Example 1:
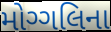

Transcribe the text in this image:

મોગ્ગલિના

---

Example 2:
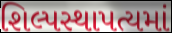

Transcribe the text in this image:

શિલ્પસ્થાપત્યમાં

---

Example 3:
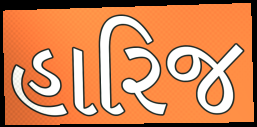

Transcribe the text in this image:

હારિજ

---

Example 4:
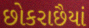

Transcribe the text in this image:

છોકરાછૈયાં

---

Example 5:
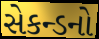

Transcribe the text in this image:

સેકન્ડનો